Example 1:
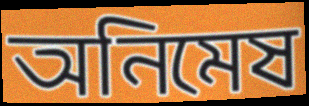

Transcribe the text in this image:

অনিমেষ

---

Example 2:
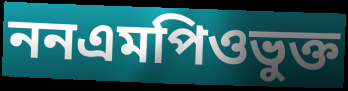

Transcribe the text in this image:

ননএমপিওভুক্ত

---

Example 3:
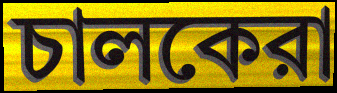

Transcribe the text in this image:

চালকেরা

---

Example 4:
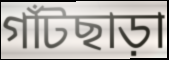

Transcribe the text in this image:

গাঁটছাড়া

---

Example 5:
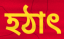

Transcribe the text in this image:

হঠাৎ